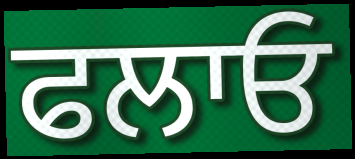
ਫਲਾਓ